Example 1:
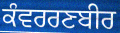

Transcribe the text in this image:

ਕੰਵਰਰਣਬੀਰ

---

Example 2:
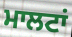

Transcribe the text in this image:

ਮਾਲਟਾਂ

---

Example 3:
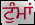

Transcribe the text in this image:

ਟੁੰਮਾਂ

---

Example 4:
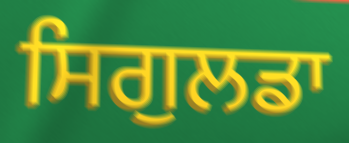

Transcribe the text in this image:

ਸਿਗੁਲਡਾ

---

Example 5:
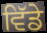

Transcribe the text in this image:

ਵਿੱਡੇ